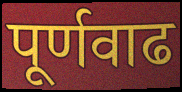
पूर्णवाढ